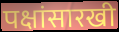
पक्षांसारखी